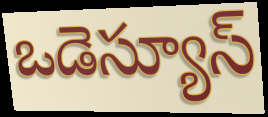
ఒడెస్యూస్